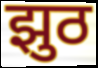
झुठ